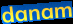
danam